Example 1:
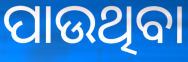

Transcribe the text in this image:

ପାଉଥିବା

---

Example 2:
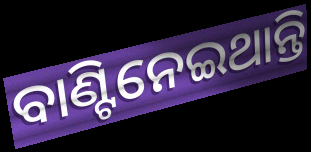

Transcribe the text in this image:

ବାଣ୍ଟିନେଇଥାନ୍ତି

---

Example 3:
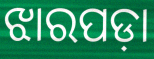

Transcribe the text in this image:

ଝାରପଡ଼ା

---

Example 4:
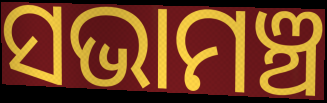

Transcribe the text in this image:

ସଭାମଞ୍ଚ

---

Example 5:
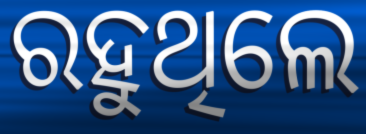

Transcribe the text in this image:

ରହୁଥିଲେ